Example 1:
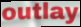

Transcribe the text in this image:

outlay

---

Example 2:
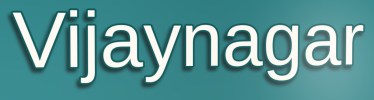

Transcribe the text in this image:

Vijaynagar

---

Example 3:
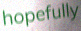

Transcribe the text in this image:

hopefully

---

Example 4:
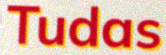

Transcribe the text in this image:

Tudas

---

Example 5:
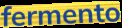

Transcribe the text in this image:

fermento